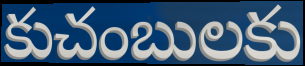
కుచంబులకు